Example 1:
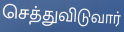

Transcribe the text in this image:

செத்துவிடுவார்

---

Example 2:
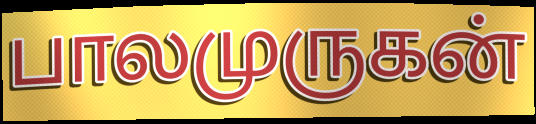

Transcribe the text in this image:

பாலமுருகன்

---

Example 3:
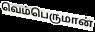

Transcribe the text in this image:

வெம்பெருமான்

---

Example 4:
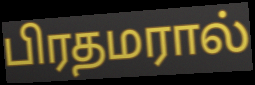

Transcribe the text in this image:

பிரதமரால்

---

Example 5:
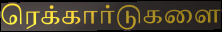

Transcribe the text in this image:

ரெக்கார்டுகளை